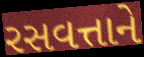
રસવત્તાને